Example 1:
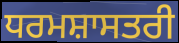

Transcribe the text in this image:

ਧਰਮਸ਼ਾਸਤਰੀ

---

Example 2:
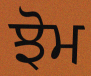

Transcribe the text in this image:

ਝੋਮ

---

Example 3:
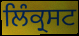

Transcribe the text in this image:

ਲਿੰਕ੍ਰਸਟ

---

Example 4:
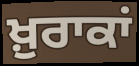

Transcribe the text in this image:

ਖ਼ੁਰਾਕਾਂ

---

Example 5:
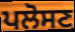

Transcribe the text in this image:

ਪਲੋਸਣ